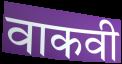
वाकवी